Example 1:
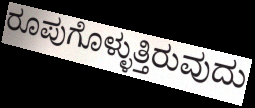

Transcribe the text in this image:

ರೂಪುಗೊಳ್ಳುತ್ತಿರುವುದು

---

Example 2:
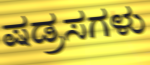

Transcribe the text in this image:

ಷಡ್ರಸಗಳು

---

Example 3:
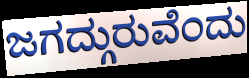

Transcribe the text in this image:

ಜಗದ್ಗುರುವೆಂದು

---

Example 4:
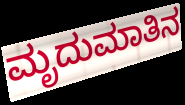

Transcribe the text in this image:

ಮೃದುಮಾತಿನ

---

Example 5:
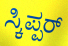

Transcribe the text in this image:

ಸ್ಕಿಪ್ಪರ್